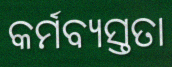
କର୍ମବ୍ୟସ୍ତତା